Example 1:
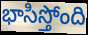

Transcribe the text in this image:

భాసిస్తోంది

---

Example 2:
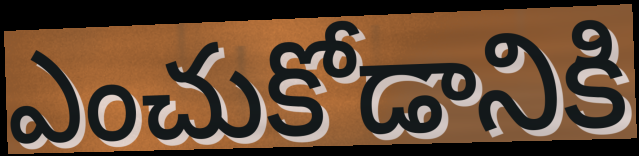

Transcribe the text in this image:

ఎంచుకోడానికి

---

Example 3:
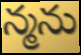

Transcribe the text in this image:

న్మను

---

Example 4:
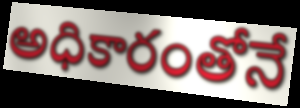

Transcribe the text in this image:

అధికారంతోనే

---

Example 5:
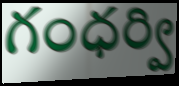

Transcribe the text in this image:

గంధర్వి